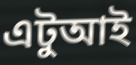
এটুআই